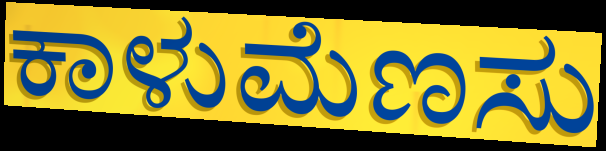
ಕಾಳುಮೆಣಸು